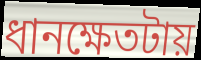
ধানক্ষেতটায়